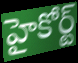
హైకోర్ట్